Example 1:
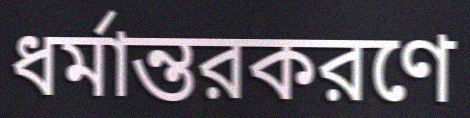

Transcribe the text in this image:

ধর্মান্তরকরণে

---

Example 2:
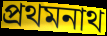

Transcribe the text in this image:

প্রথমনাথ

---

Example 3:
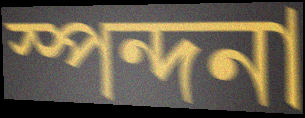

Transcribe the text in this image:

স্পন্দনা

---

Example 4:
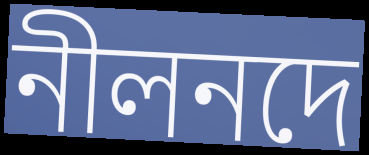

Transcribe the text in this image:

নীলনদে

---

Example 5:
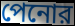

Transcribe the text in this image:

পেনোর